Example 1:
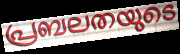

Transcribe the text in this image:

പ്രബലതയുടെ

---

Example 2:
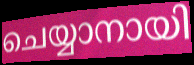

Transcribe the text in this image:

ചെയ്യാനായി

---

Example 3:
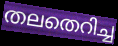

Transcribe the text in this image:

തലതെറിച്ച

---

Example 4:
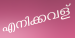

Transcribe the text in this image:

എനിക്കവള്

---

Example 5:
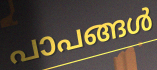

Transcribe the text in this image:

പാപങ്ങൾ